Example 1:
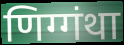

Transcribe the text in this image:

णिग्गंथा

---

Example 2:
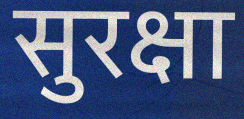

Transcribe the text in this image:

सुरक्षा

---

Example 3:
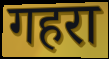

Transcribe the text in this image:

गहरा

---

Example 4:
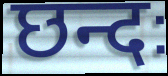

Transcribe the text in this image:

छन्दः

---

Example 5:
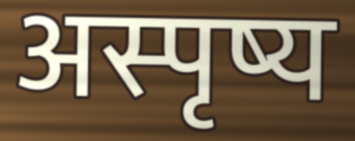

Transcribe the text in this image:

अस्पृष्य